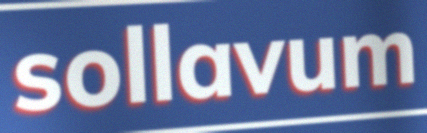
sollavum